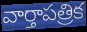
వార్తాపత్రిక